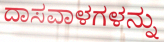
ದಾಸವಾಳಗಳನ್ನು